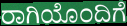
ರಾಗಿಯೊಂದಿಗೆ